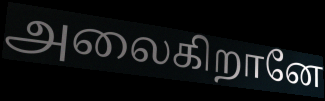
அலைகிறானே